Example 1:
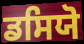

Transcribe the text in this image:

ਡਸਿਯੋ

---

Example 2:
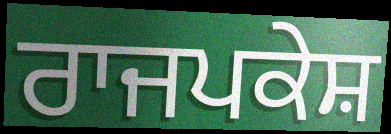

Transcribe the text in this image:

ਰਾਜਪਕੇਸ਼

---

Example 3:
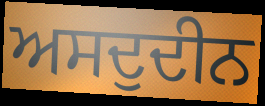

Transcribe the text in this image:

ਅਸਦੁਦੀਨ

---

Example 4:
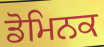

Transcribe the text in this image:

ਡੋਮਿਨਕ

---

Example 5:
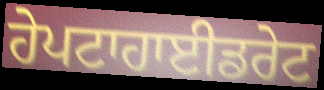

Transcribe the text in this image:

ਹੇਪਟਾਹਾਈਡਰੇਟ